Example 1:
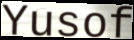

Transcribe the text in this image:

Yusof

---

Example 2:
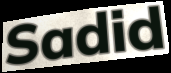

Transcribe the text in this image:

Sadid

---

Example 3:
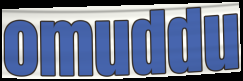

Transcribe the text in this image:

omuddu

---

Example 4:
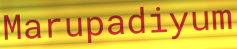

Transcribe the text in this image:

Marupadiyum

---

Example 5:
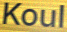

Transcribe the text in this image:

Koul